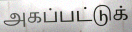
அகப்பட்டுக்